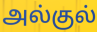
அல்குல்